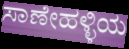
ಸಾಣೇಹಳ್ಳಿಯ